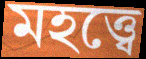
মহত্ত্বে